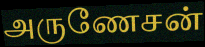
அருணேசன்